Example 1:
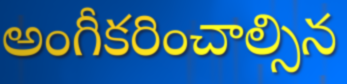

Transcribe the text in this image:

అంగీకరించాల్సిన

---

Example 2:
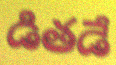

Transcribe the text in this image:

డితడే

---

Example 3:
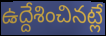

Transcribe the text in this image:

ఉద్దేశించినట్లే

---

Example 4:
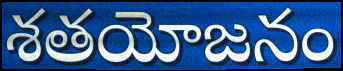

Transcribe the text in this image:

శతయోజనం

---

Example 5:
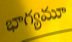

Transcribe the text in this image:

భాగ్యమూ